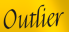
Outlier